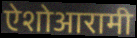
ऐशोआरामी